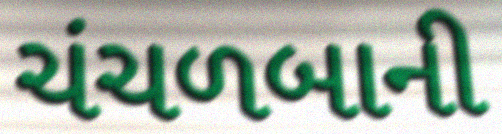
ચંચળબાની